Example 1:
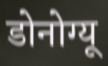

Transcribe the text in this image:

डोनोग्यू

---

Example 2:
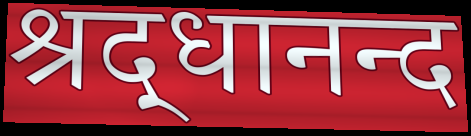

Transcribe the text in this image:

श्रद्धानन्द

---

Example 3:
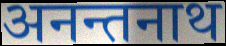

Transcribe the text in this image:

अनन्तनाथ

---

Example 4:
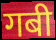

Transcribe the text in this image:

गबी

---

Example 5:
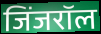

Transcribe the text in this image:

जिंजरॉल